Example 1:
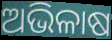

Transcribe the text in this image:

ଅଭିଳାଷ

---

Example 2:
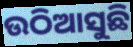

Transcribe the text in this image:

ଉଠିଆସୁଛି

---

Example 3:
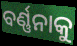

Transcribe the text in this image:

ବର୍ଣ୍ଣନାକୁ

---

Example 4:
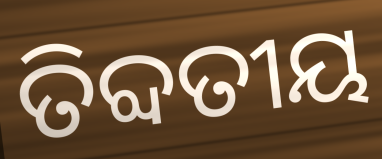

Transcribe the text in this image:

ତିବ୍ଦତୀୟ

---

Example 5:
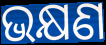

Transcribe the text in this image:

ଭକ୍ଷଣ